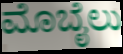
ಮೊಬೈಲು